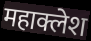
महाक्लेश